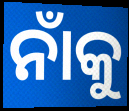
ନାଁକୁ